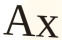
Ax